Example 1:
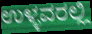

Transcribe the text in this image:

ಉಳ್ಳವರಲ್ಲಿ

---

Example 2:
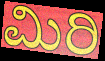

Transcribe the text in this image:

ಮಿರಿ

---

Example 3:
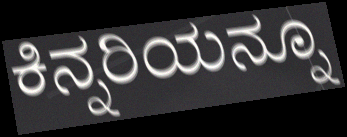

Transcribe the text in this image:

ಕಿನ್ನರಿಯನ್ನೂ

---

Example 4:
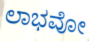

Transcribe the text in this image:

ಲಾಭವೋ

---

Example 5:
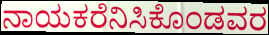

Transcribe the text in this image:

ನಾಯಕರೆನಿಸಿಕೊಂಡವರ